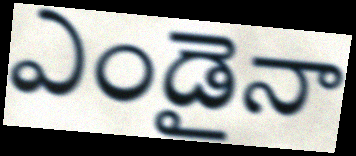
ఎండైనా